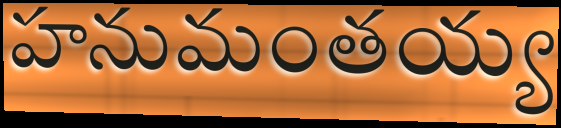
హనుమంతయ్య